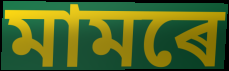
মামৰে